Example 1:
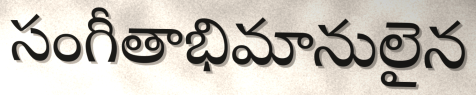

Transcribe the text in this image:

సంగీతాభిమానులైన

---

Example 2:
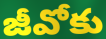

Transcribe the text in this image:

జీవోకు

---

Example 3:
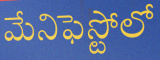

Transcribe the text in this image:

మేనిఫెస్టోలో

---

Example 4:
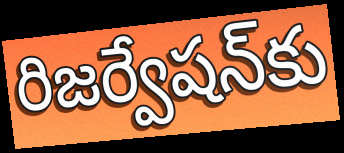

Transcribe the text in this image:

రిజర్వేషన్‌కు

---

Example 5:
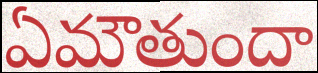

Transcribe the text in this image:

ఏమౌతుందా